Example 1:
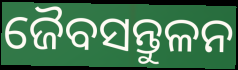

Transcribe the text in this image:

ଜୈବସନ୍ତୁଳନ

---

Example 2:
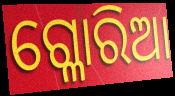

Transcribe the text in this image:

ଗ୍ଳୋରିଆ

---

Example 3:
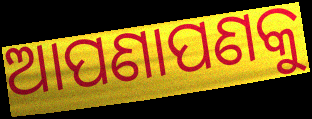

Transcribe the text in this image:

ଆପଣାପଣକୁ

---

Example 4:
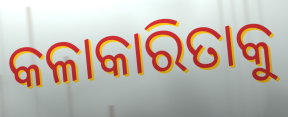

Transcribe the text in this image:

କଳାକାରିତାକୁ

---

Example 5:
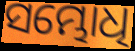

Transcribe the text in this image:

ସମ୍ଭୋଧି